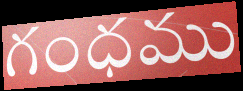
గంధము